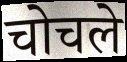
चोचले